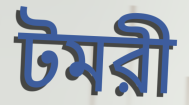
টমরী